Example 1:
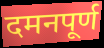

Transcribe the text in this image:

दमनपूर्ण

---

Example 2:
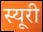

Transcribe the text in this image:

स्यूरी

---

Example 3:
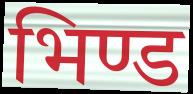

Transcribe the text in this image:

भिण्‍ड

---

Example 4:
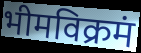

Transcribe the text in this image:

भीमविक्रमं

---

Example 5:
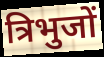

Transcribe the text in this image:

त्रिभुजों